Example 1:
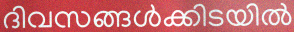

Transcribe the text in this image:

ദിവസങ്ങൾക്കിടയിൽ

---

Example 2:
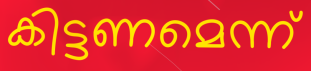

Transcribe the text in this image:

കിട്ടണമെന്ന്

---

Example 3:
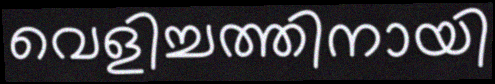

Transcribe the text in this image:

വെളിച്ചത്തിനായി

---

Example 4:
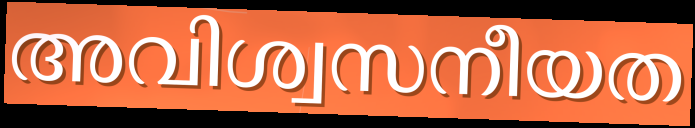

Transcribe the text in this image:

അവിശ്വസനീയത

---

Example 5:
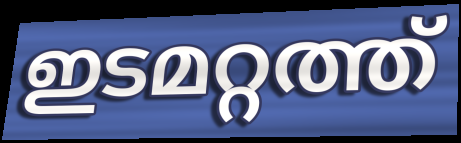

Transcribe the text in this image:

ഇടമറ്റത്ത്